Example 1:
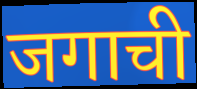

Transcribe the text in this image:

जगाची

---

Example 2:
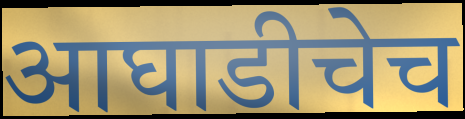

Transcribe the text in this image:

आघाडीचेच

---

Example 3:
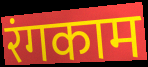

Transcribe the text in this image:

रंगकाम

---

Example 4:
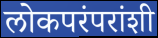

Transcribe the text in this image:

लोकपरंपरांशी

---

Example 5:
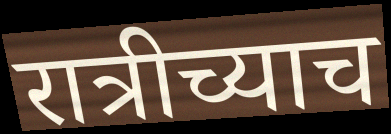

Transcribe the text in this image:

रात्रीच्याच